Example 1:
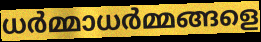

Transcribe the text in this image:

ധർമ്മാധർമ്മങ്ങളെ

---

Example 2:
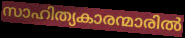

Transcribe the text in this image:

സാഹിത്യകാരന്മാരിൽ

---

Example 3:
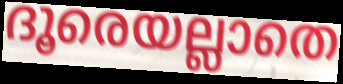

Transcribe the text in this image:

ദൂരെയല്ലാതെ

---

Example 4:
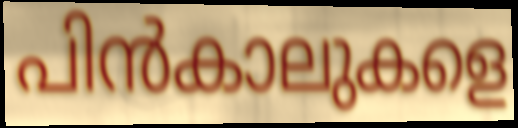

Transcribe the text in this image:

പിൻകാലുകളെ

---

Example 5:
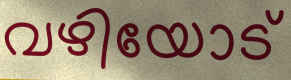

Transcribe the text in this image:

വഴിയോട്